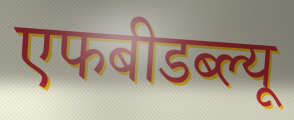
एफबीडब्ल्यू